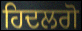
ਹਿਦਲਗੋ